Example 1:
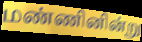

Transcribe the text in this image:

மண்ணினின்று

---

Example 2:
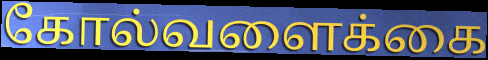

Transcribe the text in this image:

கோல்வளைக்கை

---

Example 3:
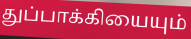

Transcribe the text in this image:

துப்பாக்கியையும்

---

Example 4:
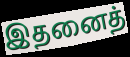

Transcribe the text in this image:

இதனைத்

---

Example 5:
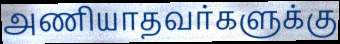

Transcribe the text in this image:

அணியாதவர்களுக்கு